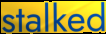
stalked